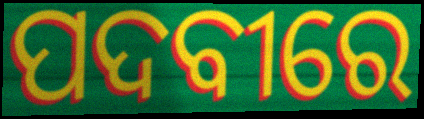
ପଦବୀରେ